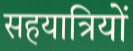
सहयात्रियों